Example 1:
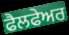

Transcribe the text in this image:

ਫੈਲਫੇਅਰ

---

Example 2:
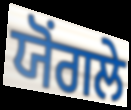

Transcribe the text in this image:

ਯੋਂਗਲੇ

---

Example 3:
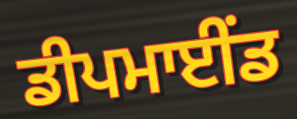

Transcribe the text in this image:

ਡੀਪਮਾਈਂਡ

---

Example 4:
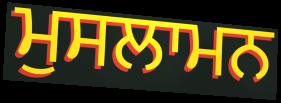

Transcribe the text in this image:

ਮੁਸਲਾਮਨ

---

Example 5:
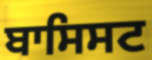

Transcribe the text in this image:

ਬਾਸਿਸਟ